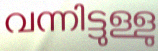
വന്നിട്ടുള്ളു